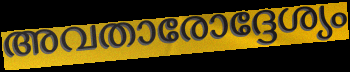
അവതാരോദ്ദേശ്യം